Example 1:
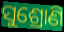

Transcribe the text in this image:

ସୁଶ୍ରୋଣି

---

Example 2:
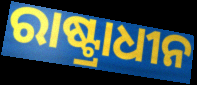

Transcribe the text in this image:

ରାଷ୍ଟ୍ରାଧୀନ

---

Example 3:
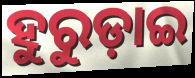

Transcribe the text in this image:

ହୁରୁଡ଼ାଇ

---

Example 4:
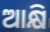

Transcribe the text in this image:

ଆକ୍ଷି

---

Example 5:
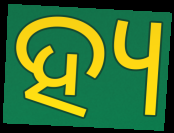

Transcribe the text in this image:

ହ୍ୟ